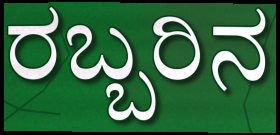
ರಬ್ಬರಿನ